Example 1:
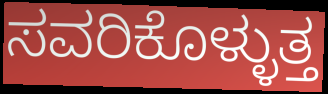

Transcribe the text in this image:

ಸವರಿಕೊಳ್ಳುತ್ತ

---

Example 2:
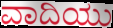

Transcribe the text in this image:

ವಾದಿಯು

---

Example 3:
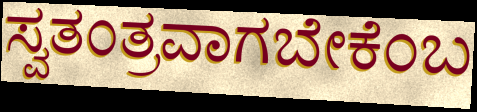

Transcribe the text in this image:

ಸ್ವತಂತ್ರವಾಗಬೇಕೆಂಬ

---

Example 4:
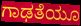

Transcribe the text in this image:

ಗಾಢತೆಯೂ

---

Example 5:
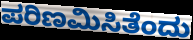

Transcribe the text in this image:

ಪರಿಣಮಿಸಿತೆಂದು